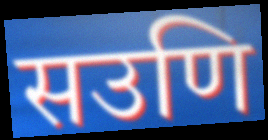
सउणि